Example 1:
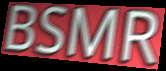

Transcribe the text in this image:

BSMR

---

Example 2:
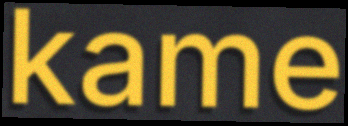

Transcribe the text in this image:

kame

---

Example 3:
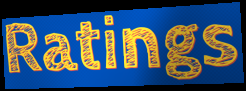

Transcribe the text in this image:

Ratings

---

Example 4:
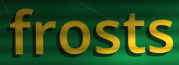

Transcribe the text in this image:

frosts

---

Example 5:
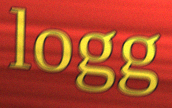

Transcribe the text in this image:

logg